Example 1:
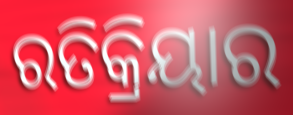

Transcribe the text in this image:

ରତିକ୍ରିୟାର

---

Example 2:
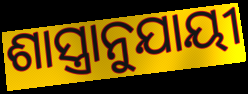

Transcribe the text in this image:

ଶାସ୍ତ୍ରାନୁଯାୟୀ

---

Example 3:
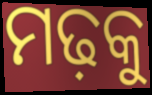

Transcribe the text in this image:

ମଢ଼କୁ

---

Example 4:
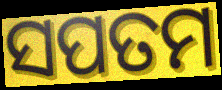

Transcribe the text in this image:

ସପତମ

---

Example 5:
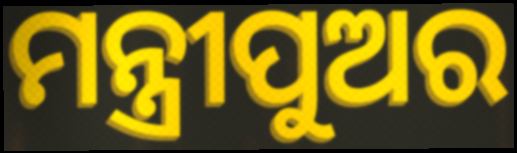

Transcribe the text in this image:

ମନ୍ତ୍ରୀପୁଅର